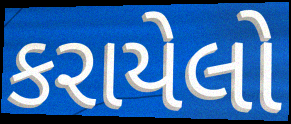
કરાયેલો